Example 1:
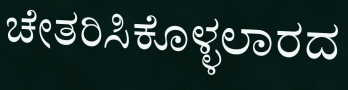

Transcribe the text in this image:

ಚೇತರಿಸಿಕೊಳ್ಳಲಾರದ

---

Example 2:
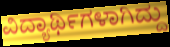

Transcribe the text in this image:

ವಿದ್ಯಾರ್ಥಿಗಳಾಗಿದ್ದು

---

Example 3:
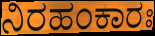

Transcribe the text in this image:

ನಿರಹಂಕಾರಃ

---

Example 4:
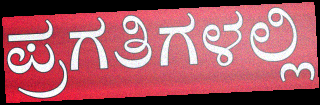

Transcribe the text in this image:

ಪ್ರಗತಿಗಳಲ್ಲಿ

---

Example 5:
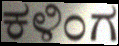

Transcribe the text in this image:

ಕಳಿಂಗ